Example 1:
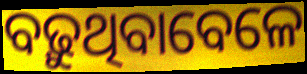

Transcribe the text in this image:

ବଢ଼ୁଥିବାବେଳେ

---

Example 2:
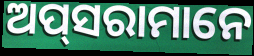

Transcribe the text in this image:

ଅପ୍‍ସରାମାନେ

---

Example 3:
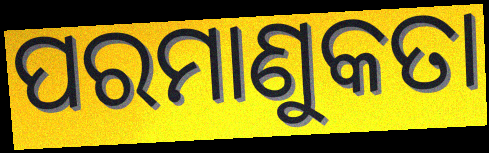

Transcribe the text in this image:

ପରମାଣୁକତା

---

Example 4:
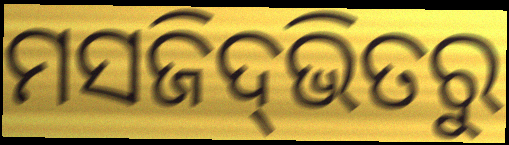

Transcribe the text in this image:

ମସଜିଦ୍‌ଭିତରୁ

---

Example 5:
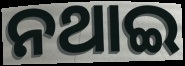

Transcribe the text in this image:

ନଥାଇ